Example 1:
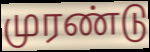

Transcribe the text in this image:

முரண்டு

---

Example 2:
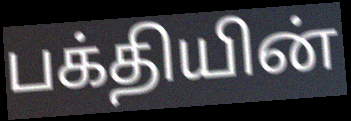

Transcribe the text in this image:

பக்தியின்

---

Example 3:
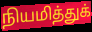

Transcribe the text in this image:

நியமித்துக்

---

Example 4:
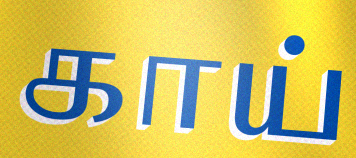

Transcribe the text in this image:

காய்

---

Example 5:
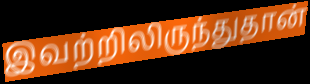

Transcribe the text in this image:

இவற்றிலிருந்துதான்